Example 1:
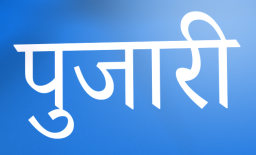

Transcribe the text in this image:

पुजारी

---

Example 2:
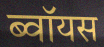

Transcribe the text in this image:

ब्वॉयस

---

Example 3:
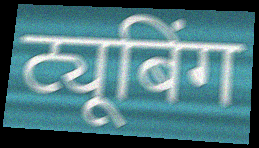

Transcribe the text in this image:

ट्यूबिंग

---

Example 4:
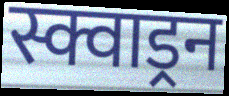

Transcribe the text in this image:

स्क्वाड्रन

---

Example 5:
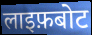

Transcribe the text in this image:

लाइफ़बोट